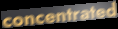
concentrated